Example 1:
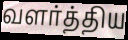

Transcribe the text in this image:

வளர்த்திய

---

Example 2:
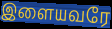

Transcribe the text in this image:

இளையவரே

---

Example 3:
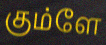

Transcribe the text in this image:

கும்ளே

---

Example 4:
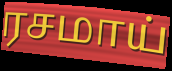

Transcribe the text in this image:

ரசமாய்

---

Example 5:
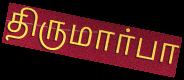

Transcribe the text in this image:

திருமார்பா